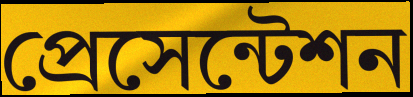
প্রেসেন্টেশন